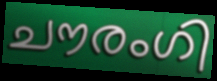
ചൗരംഗി